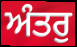
ਅੰਤਰੁ